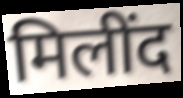
मिलींद